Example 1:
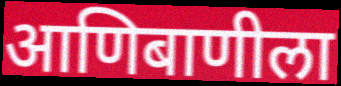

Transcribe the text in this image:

आणिबाणीला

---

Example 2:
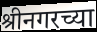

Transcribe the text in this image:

श्रीनगरच्या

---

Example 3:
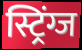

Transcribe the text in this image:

स्ट्रिंग्ज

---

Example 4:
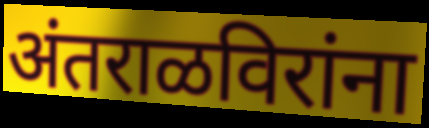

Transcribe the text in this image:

अंतराळविरांना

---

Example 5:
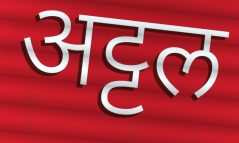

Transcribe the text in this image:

अट्टल